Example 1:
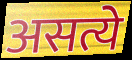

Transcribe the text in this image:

असत्ये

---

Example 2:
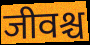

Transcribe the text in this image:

जीवश्च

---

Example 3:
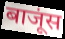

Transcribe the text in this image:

बाजूंस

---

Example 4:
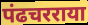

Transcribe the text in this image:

पंढचरराया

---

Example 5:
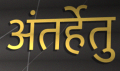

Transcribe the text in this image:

अंतर्हेतु